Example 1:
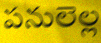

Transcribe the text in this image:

పనులెల్ల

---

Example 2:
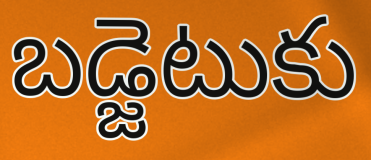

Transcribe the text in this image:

బడ్జెటుకు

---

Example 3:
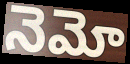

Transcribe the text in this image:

నెమో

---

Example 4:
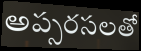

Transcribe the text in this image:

అప్సరసలతో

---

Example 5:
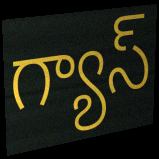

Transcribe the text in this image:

గ్యాస్